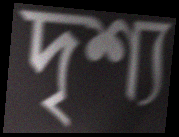
দৃশ্য